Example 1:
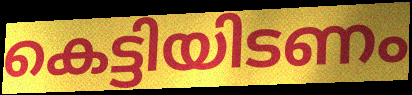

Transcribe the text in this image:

കെട്ടിയിടണം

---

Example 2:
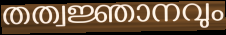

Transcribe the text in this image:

തത്വജ്ഞാനവും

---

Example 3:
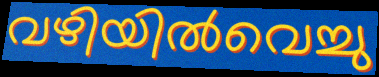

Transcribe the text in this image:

വഴിയിൽവെച്ചു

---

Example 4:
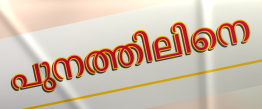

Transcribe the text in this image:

പുനത്തിലിനെ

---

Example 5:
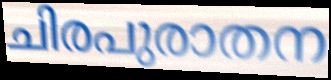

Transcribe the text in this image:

ചിരപുരാതന